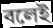
বলেই